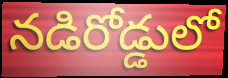
నడిరోడ్డులో